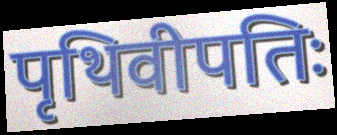
पृथिवीपतिः